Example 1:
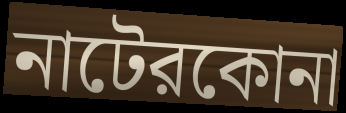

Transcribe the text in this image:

নাটেরকোনা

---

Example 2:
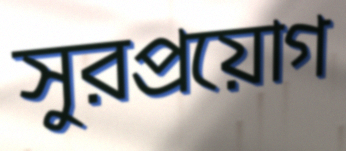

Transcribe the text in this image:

সুরপ্রয়োগ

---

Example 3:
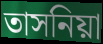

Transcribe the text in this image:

তাসনিয়া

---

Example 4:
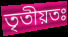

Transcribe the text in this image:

তৃতীয়তঃ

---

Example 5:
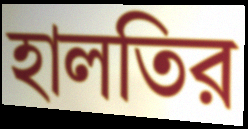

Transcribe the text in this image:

হালতির